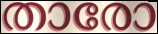
താരോ